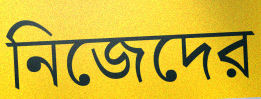
নিজেদের